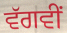
ਵੱਗਵੀਂ